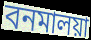
বনমালয়া